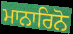
ਮਾਨਾਰਿਨੋ